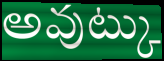
అవుట్కు